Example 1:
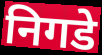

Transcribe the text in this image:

निगडे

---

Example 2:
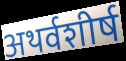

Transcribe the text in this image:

अथर्वशीर्ष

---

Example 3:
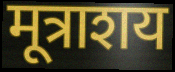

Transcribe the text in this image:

मूत्राशय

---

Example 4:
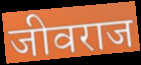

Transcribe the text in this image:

जीवराज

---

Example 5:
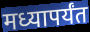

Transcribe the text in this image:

मध्यापर्यंत